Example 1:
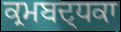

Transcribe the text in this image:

ਕ੍ਰਮਬਦ੍ਧਕਾ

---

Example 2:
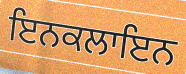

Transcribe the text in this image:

ਇਨਕਲਾਇਨ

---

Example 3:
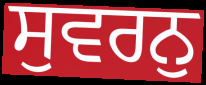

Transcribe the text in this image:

ਸੁਵਰਨੁ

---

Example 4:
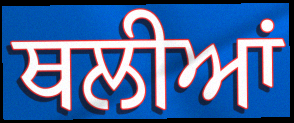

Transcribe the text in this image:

ਥਲੀਆਂ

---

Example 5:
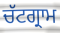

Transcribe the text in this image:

ਚੱਟਗ੍ਰਾਮ